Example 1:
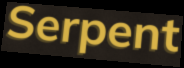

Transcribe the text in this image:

Serpent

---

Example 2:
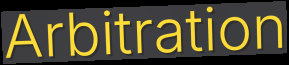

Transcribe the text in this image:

Arbitration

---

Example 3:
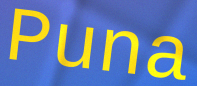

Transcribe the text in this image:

Puna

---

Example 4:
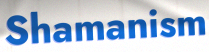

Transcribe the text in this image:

Shamanism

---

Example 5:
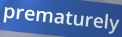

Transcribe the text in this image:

prematurely